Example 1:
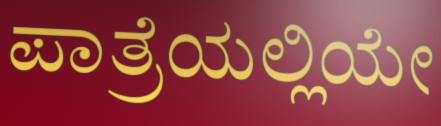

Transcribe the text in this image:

ಪಾತ್ರೆಯಲ್ಲಿಯೇ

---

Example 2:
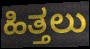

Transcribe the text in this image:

ಹಿತ್ತಲು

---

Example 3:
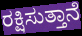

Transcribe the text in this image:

ರಕ್ಷಿಸುತ್ತಾನೆ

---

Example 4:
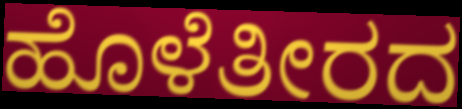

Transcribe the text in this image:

ಹೊಳೆತೀರದ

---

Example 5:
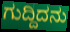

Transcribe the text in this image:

ಗುದ್ದಿದನು